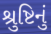
શ્રુષ્ટિનું